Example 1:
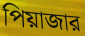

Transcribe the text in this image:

পিয়াজার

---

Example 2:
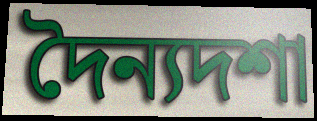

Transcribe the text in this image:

দৈন্যদশা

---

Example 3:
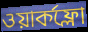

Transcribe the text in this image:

ওয়ার্কফ্লো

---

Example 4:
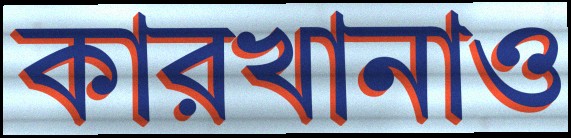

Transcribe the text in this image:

কারখানাও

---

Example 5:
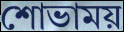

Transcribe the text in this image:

শোভাময়